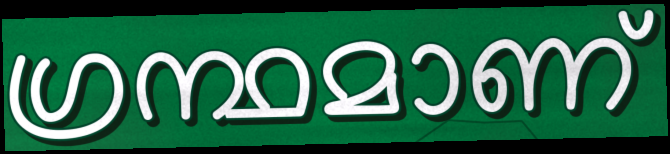
ഗ്രന്ഥമാണ്